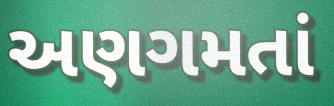
અણગમતાં